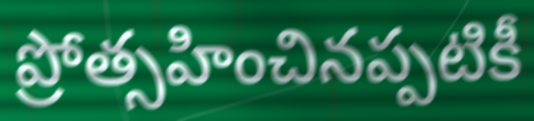
ప్రోత్సహించినప్పటికీ